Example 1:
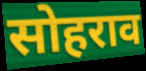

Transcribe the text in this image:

सोहराव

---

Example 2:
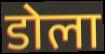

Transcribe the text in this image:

डोला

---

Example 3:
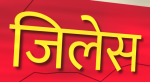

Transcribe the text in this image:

जिलेस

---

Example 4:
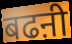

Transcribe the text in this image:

बढऩी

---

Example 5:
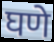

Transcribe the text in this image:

घणे